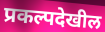
प्रकल्पदेखील